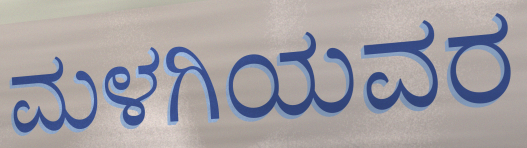
ಮಳಗಿಯವರ